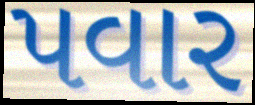
પવાર